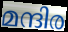
മന്ദിര